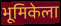
भूमिकेला